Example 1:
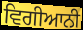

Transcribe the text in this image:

ਵਿਗੀਆਨੀ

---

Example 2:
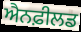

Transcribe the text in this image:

ਐਨਫ਼ੀਲਡ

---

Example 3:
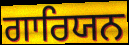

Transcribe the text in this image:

ਗਾਰਿਯਨ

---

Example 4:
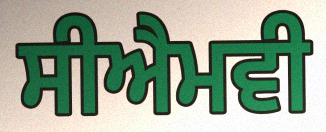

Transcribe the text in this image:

ਸੀਐਮਵੀ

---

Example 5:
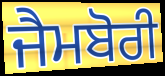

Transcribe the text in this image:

ਜੈਮਬੋਰੀ